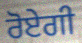
ਰੋਏਗੀ